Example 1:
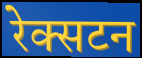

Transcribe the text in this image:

रेक्सटन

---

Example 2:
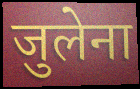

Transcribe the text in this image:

जुलेना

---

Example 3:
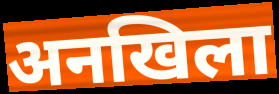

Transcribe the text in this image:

अनखिला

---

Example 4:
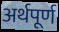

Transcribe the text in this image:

अर्थपूर्ण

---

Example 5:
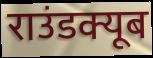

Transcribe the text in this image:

राउंडक्यूब